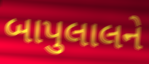
બાપુલાલને